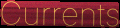
Currents